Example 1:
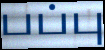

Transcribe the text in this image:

பப்பு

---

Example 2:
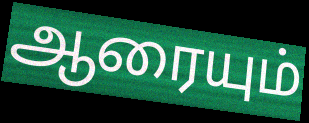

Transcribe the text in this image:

ஆரையும்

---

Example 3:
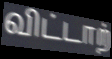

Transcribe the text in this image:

விட்டாற்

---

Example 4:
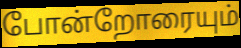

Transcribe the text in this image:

போன்றோரையும்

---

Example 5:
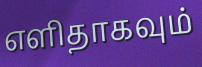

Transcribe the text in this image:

எளிதாகவும்